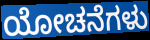
ಯೋಚನೆಗಳು